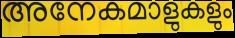
അനേകമാളുകളും